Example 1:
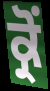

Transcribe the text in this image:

ਕ੍ਰੋਂ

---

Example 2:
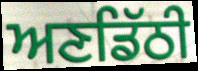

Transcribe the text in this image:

ਅਣਡਿੱਠੀ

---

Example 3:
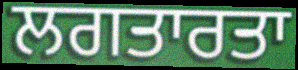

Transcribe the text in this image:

ਲਗਤਾਰਤਾ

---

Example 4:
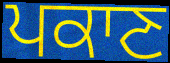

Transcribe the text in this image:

ਪਕਾਣ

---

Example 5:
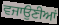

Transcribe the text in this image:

ਵਜਾਉਣੀਆਂ